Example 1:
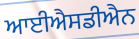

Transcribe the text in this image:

ਆਈਐਸਡੀਐਨ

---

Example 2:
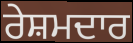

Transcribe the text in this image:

ਰੇਸ਼ਮਦਾਰ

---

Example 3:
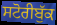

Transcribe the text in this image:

ਸਟੋਰੀਬੁੱਕ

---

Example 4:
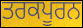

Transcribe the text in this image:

ਤਰਕਪੂਰਨ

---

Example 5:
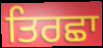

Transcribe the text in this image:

ਤਿਰਛਾ